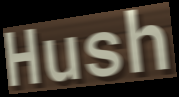
Hush